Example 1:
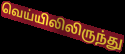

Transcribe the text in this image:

வெய்யிலிலிருந்து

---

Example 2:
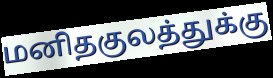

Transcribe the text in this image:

மனிதகுலத்துக்கு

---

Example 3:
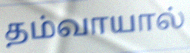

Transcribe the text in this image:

தம்வாயால்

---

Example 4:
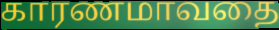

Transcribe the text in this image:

காரணமாவதை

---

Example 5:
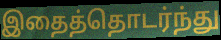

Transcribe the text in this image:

இதைத்தொடர்ந்து